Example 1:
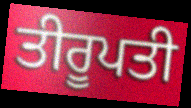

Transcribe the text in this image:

ਤੀਰੂਪਤੀ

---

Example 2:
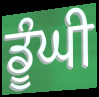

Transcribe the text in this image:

ਡੂੰਘੀ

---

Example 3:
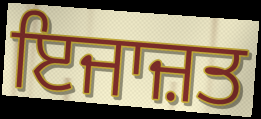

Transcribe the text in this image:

ਇਜਾਜ਼ਤ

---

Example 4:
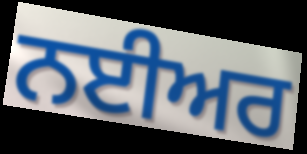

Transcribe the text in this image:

ਨਈਅਰ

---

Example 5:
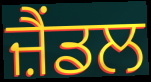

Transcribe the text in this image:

ਜ਼ੈਂਡਲ